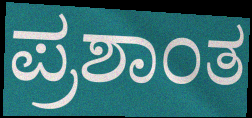
ಪ್ರಶಾಂತ